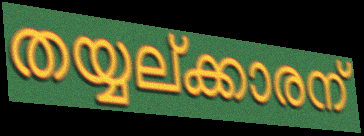
തയ്യല്ക്കാരന്